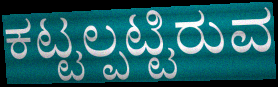
ಕಟ್ಟಲ್ಪಟ್ಟಿರುವ